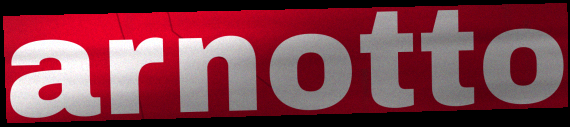
arnotto